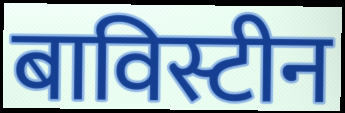
बाविस्टीन